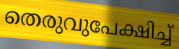
തെരുവുപേക്ഷിച്ച്